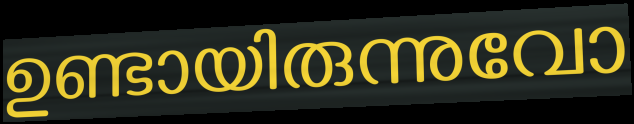
ഉണ്ടായിരുന്നുവോ